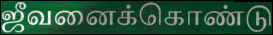
ஜீவனைக்கொண்டு